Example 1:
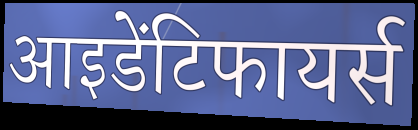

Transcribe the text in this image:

आइडेंटिफायर्स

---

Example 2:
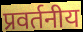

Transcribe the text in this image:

प्रवर्तनीय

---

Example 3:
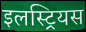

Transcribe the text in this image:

इलस्ट्रियस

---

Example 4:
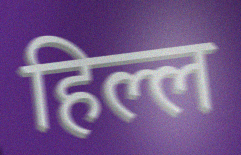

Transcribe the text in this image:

हिल्ल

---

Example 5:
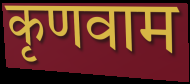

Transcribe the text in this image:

कृणवाम